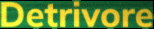
Detrivore